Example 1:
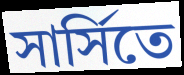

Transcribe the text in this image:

সার্সিতে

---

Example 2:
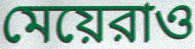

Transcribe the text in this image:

মেয়েরাও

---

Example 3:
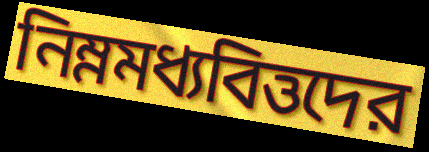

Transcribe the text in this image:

নিম্নমধ্যবিত্তদের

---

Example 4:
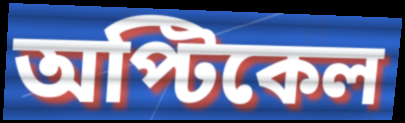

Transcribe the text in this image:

অপ্টিকেল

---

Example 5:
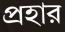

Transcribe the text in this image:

প্রহার